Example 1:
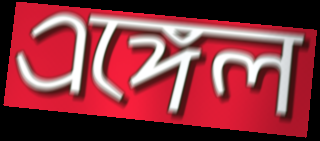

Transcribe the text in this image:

এঙ্গেল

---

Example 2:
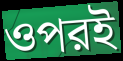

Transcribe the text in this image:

ওপরই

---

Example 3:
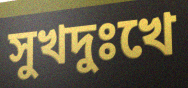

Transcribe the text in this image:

সুখদুঃখে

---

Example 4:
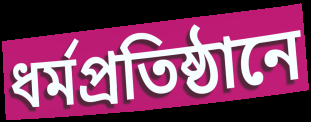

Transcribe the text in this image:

ধর্মপ্রতিষ্ঠানে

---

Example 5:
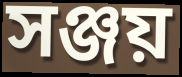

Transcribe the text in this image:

সঞ্জয়